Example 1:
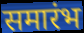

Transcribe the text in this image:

समारंभ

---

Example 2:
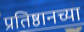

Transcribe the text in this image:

प्रतिष्ठानच्या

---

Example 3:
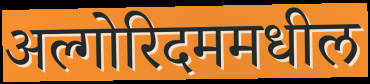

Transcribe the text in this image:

अल्गोरिदममधील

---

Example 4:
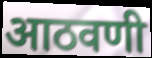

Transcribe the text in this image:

आठवणी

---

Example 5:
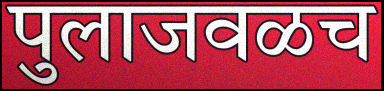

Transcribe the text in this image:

पुलाजवळच